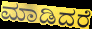
ಮಾಡಿದರೆ